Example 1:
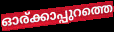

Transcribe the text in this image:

ഓര്ക്കാപ്പുറത്തെ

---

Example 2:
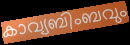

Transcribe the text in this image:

കാവ്യബിംബവും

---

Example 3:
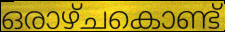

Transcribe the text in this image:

ഒരാഴ്ചകൊണ്ട്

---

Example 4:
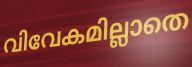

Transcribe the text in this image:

വിവേകമില്ലാതെ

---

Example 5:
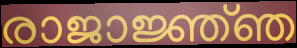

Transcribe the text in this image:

രാജാജ്ഞ്ഞ